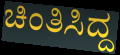
ಚಿಂತಿಸಿದ್ದ